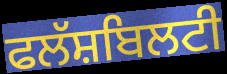
ਫਲੱਸ਼ਬਿਲਟੀ